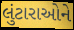
લુંટારાઓને